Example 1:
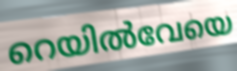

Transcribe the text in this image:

റെയിൽവേയെ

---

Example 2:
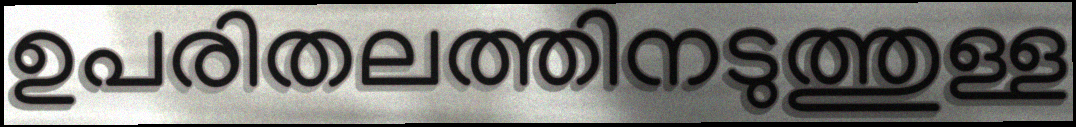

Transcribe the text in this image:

ഉപരിതലത്തിനടുത്തുള്ള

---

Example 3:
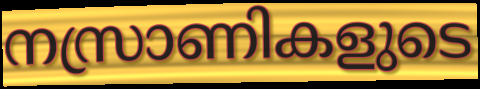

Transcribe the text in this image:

നസ്രാണികളുടെ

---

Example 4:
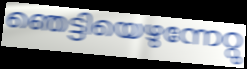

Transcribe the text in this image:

ഞെട്ടിയെഴുന്നേറ്റു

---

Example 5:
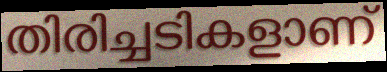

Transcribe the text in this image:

തിരിച്ചടികളാണ്